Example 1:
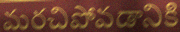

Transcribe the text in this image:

మరచిపోవడానికి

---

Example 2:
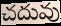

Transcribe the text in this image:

చదువు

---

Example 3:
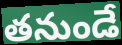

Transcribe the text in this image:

తనుండే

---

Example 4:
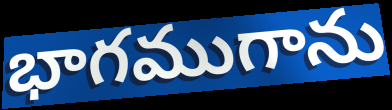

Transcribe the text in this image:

భాగముగాను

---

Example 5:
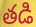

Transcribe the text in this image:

తడి